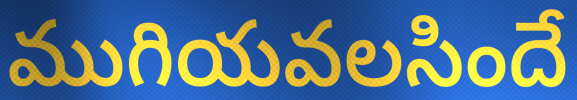
ముగియవలసిందే